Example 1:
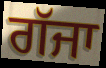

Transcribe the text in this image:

ਗੱਜਾ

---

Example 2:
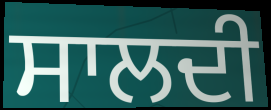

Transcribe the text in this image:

ਸਾਲਦੀ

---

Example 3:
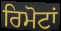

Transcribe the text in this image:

ਰਿਮੋਟਾਂ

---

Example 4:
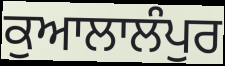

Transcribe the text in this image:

ਕੁਆਲਾਲੰਪੁਰ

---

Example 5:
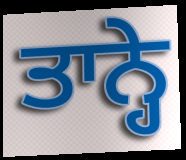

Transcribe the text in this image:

ਤਾਨ੍ਹੇ